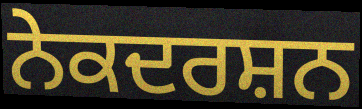
ਨੇਕਦਰਸ਼ਨ